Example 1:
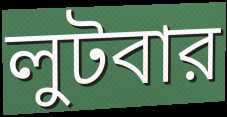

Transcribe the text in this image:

লুটবার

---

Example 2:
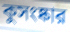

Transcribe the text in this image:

কুসংষ্কার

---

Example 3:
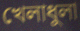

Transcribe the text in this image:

খেলাধুলা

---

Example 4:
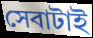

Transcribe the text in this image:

সেবাটাই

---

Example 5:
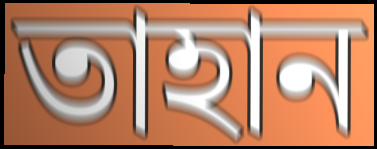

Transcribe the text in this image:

তাহান